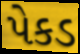
પેકડ